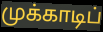
முக்காடிப்